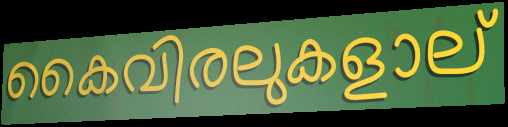
കൈവിരലുകളാല്